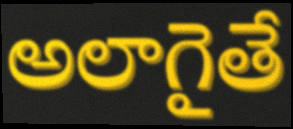
అలాగైతే